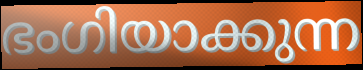
ഭംഗിയാക്കുന്ന